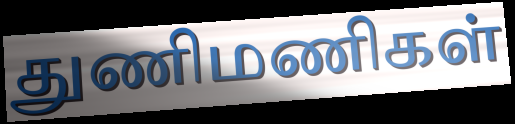
துணிமணிகள்